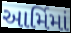
આર્મિમાં